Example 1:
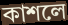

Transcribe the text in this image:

কাশলে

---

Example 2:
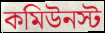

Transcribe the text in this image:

কমিউনস্ট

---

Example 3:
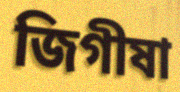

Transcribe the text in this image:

জিগীষা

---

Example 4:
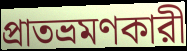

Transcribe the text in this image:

প্রাতভ্রমণকারী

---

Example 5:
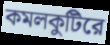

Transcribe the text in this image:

কমলকুটিরে